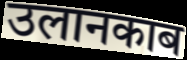
उलानकाब